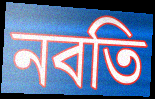
নবতি